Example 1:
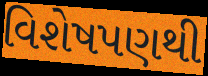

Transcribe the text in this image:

વિશેષપણથી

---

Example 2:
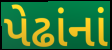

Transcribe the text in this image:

પેઢાંનાં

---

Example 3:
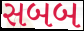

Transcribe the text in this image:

સબબ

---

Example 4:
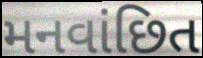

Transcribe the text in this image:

મનવાંછિત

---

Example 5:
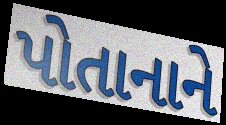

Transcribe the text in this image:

પોતાનાને